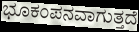
ಭೂಕಂಪನವಾಗುತ್ತದೆ